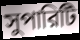
সুপারিটি